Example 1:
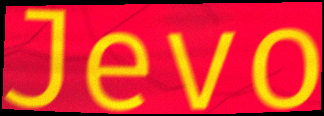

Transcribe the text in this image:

Jevo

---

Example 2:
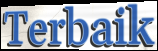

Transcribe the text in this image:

Terbaik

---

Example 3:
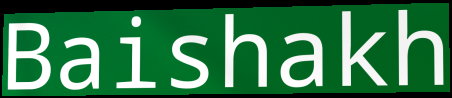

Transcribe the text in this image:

Baishakh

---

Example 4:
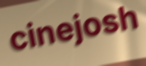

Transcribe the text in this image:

cinejosh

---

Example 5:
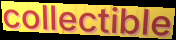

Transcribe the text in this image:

collectible